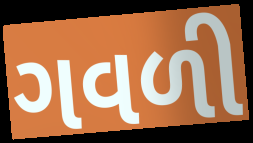
ગવળી